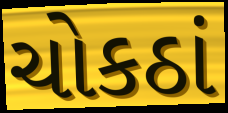
ચોકઠાં